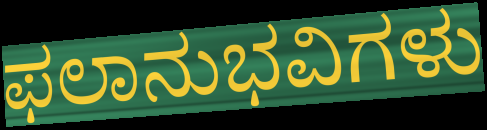
ಫಲಾನುಭವಿಗಳು